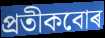
প্ৰতীকবোৰ